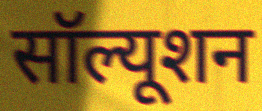
सॉल्यूशन